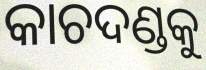
କାଚଦଣ୍ଡକୁ